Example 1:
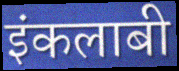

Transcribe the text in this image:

इंकलाबी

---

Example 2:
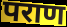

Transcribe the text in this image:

पराण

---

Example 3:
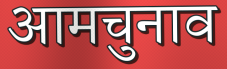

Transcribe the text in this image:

आमचुनाव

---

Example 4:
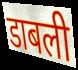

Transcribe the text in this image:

डाबली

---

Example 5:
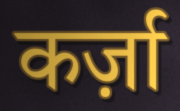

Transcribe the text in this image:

कर्ज़ा